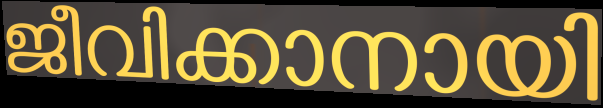
ജീവിക്കാനായി